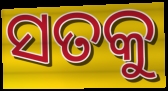
ସତକୁ